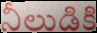
నీలుడికి